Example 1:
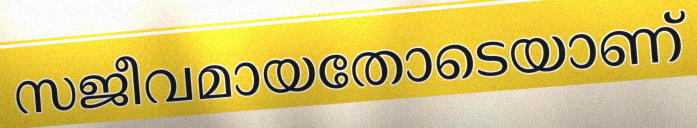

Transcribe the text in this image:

സജീവമായതോടെയാണ്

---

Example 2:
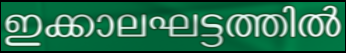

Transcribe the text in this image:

ഇക്കാലഘട്ടത്തിൽ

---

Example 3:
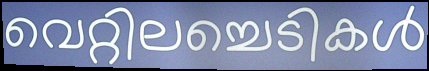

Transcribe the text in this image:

വെറ്റിലച്ചെടികൾ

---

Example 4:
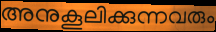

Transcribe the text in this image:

അനുകൂലിക്കുന്നവരും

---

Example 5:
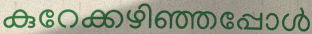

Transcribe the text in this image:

കുറേക്കഴിഞ്ഞപ്പോൾ